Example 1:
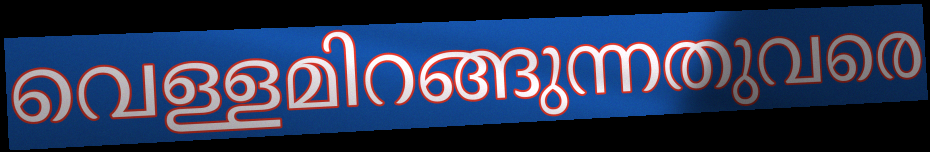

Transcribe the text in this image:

വെള്ളമിറങ്ങുന്നതുവരെ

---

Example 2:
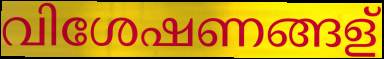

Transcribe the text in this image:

വിശേഷണങ്ങള്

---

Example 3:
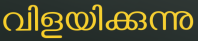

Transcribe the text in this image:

വിളയിക്കുന്നു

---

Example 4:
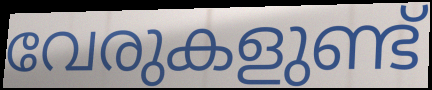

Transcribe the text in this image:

വേരുകളുണ്ട്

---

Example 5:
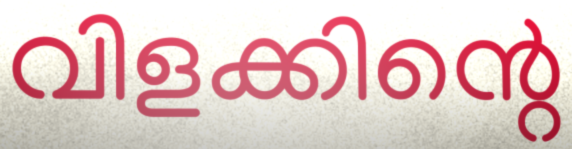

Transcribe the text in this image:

വിളക്കിന്റെ